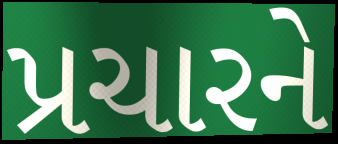
પ્રચારને